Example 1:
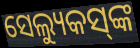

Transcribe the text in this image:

ସେଲ୍ୟୁକସ୍‌ଙ୍କ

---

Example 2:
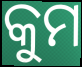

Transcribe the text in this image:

କୁମ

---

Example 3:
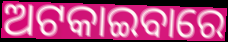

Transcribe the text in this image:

ଅଟକାଇବାରେ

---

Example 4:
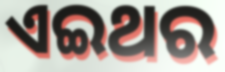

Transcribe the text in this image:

ଏଇଥର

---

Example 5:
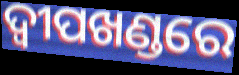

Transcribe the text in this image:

ଦ୍ଵୀପଖଣ୍ଡରେ